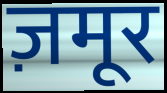
ज़मूर